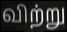
விற்று